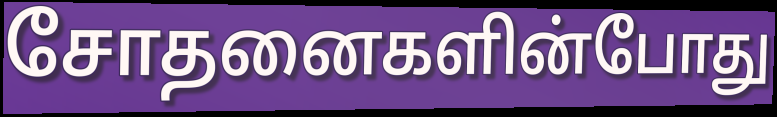
சோதனைகளின்போது